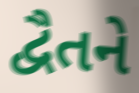
દ્વૈતને